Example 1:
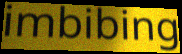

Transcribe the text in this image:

imbibing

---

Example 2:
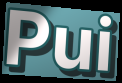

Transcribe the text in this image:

Pui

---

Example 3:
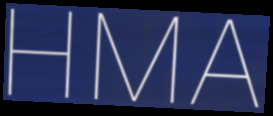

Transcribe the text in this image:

HMA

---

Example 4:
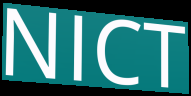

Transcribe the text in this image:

NICT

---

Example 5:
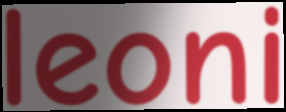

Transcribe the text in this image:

leoni